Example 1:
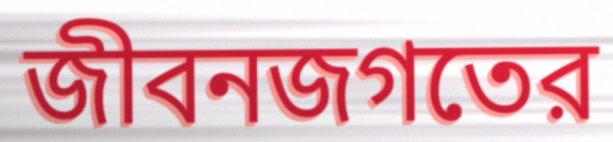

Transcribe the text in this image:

জীবনজগতের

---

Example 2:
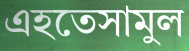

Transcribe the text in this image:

এহতেসামুল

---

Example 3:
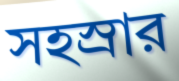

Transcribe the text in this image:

সহস্রার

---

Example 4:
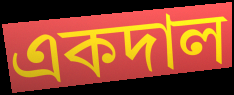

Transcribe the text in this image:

একদাল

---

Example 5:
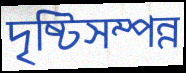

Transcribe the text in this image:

দৃষ্টিসম্পন্ন